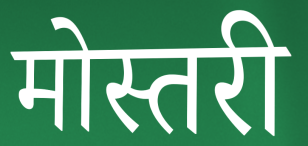
मोस्तरी